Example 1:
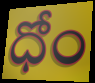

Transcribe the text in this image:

ధోం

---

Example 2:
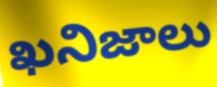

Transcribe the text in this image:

ఖనిజాలు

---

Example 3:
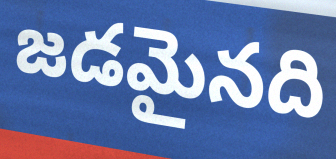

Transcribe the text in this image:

జడమైనది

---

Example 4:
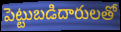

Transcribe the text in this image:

పెట్టుబడిదారులతో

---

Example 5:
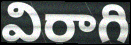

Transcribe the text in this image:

విరాగి